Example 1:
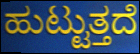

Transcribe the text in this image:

ಹುಟ್ಟುತ್ತದೆ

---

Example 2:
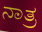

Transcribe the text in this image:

ನಾತ್ರ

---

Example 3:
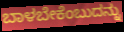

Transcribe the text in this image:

ಬಾಳಬೇಕೆಂಬುದನ್ನು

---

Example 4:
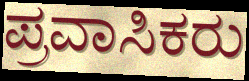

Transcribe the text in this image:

ಪ್ರವಾಸಿಕರು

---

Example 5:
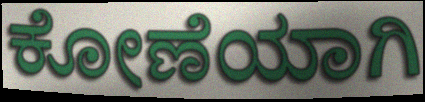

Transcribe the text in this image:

ಕೋಣೆಯಾಗಿ